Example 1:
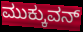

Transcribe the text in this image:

ಮುಕ್ಕುವನ್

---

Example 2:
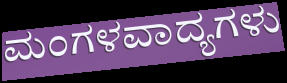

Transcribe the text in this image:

ಮಂಗಳವಾದ್ಯಗಳು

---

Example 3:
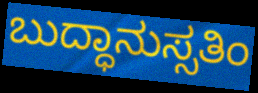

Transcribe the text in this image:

ಬುದ್ಧಾನುಸ್ಸತಿಂ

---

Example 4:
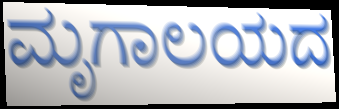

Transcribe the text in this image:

ಮೃಗಾಲಯದ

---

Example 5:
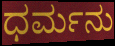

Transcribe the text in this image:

ಧರ್ಮನು